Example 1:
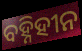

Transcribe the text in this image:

ବହ୍ନିହୀନ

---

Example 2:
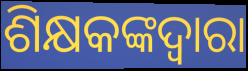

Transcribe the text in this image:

ଶିକ୍ଷକଙ୍କଦ୍ଵାରା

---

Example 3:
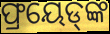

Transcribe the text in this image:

ଫ୍ରୟେଡ୍‍ଙ୍କ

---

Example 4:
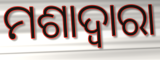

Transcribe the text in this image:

ମଶାଦ୍ୱାରା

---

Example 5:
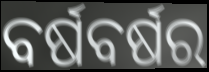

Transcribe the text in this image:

ବର୍ଷବର୍ଷର